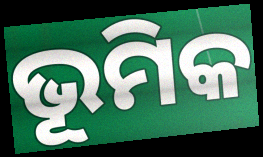
ଭୂମିକ